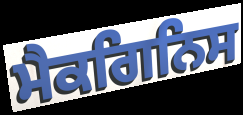
ਮੈਕਗਿਨਿਸ